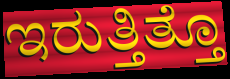
ಇರುತ್ತಿತ್ತೊ